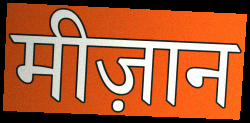
मीज़ान